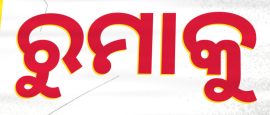
ରୁମାକୁ